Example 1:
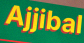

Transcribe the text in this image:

Ajjibal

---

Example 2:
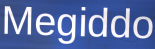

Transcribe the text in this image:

Megiddo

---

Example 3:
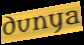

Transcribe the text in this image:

dunya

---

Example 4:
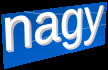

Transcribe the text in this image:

nagy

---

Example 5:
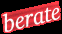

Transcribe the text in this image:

berate